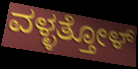
ವಳ್ಳತ್ತೋಳ್